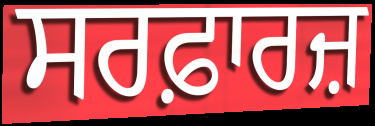
ਸਰਫ਼ਾਰਜ਼